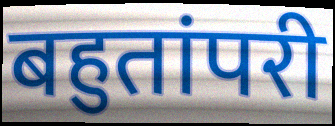
बहुतांपरी